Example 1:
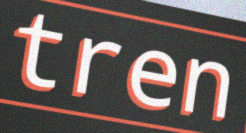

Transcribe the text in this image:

tren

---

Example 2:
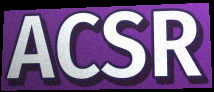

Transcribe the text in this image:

ACSR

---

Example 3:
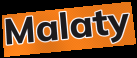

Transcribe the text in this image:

Malaty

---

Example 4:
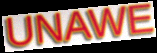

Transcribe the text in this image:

UNAWE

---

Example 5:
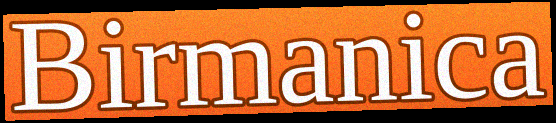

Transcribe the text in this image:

Birmanica